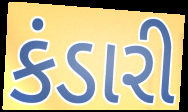
કંડારી